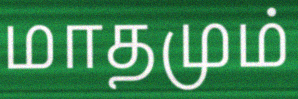
மாதமும்